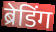
ब्रेडिंग